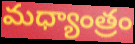
మధ్యాంత్రం